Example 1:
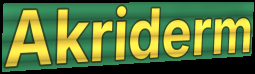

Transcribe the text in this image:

Akriderm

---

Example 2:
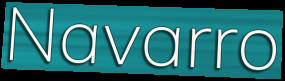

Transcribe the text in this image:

Navarro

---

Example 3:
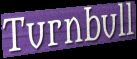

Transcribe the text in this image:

Turnbull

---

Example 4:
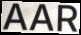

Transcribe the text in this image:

AAR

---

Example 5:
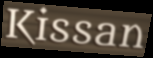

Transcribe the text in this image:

Kissan